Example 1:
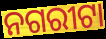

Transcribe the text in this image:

ନଗରୀଟା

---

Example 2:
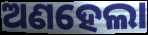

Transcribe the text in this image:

ଅଣହେଲା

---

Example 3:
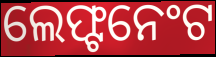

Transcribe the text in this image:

ଲେଫ୍ଟନେଂଟ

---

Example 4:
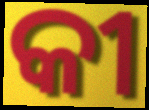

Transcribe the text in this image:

କୀ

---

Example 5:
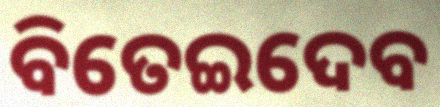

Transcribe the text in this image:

ବିତେଇଦେବ